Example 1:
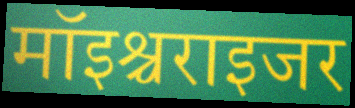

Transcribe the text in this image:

मॉइश्चराइजर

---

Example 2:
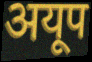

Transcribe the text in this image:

अयूप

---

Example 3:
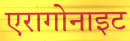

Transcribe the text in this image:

एरागोनाइट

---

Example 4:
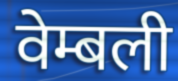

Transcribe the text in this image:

वेम्बली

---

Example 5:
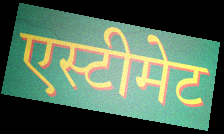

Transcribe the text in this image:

एस्टीमेट